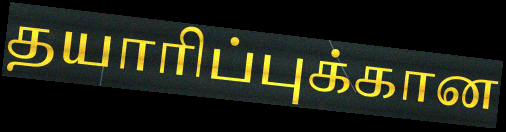
தயாரிப்புக்கான